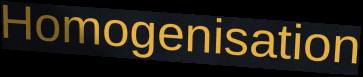
Homogenisation